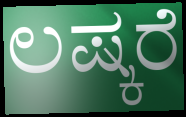
ಲಷ್ಕರೆ